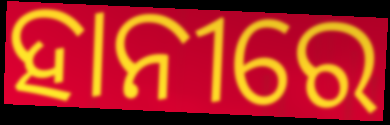
ହାନୀରେ